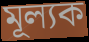
মূল্যক